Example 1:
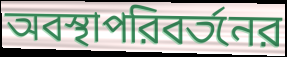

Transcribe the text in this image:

অবস্থাপরিবর্তনের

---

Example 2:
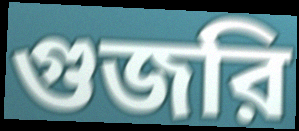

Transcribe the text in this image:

গুজরি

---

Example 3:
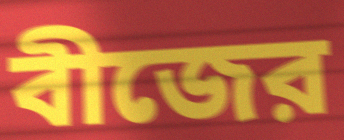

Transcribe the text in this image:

বীজের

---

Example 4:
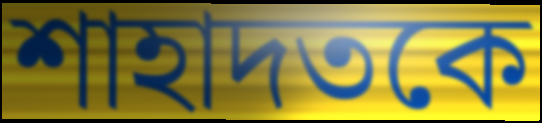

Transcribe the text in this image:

শাহাদতকে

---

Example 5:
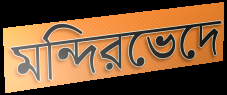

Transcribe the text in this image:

মন্দিরভেদে